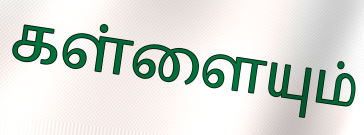
கள்ளையும்